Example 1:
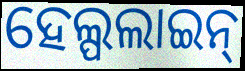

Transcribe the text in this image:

ହେଲ୍ପଲାଇନ୍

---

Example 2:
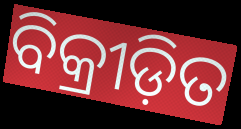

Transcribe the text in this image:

ବିକ୍ରୀଡ଼ିତ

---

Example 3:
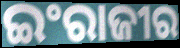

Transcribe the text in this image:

ଇଂରାଜୀର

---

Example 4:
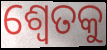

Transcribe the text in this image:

ଶ୍ଵେତକୁ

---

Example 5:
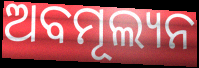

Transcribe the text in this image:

ଅବମୂଲ୍ୟନ